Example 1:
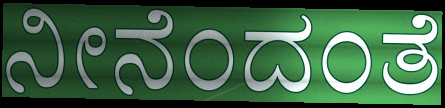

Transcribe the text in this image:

ನೀನೆಂದಂತೆ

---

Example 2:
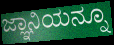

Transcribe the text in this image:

ಜ್ಞಾನಿಯನ್ನೂ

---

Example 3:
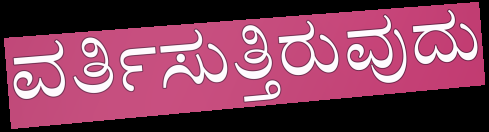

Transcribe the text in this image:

ವರ್ತಿಸುತ್ತಿರುವುದು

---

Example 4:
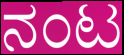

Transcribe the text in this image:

ನಂಟ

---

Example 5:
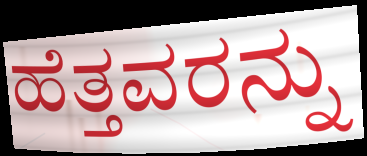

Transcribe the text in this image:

ಹೆತ್ತವರನ್ನು